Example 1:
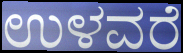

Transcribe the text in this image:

ಉಳವರೆ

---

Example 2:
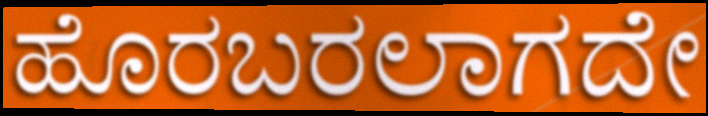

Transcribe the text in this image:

ಹೊರಬರಲಾಗದೇ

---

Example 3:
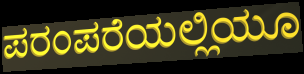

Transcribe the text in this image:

ಪರಂಪರೆಯಲ್ಲಿಯೂ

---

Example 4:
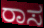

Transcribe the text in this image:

ರಾಸ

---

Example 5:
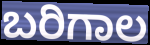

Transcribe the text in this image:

ಬರಿಗಾಲ